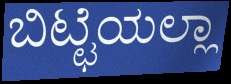
ಬಿಟ್ಟೆಯಲ್ಲಾ